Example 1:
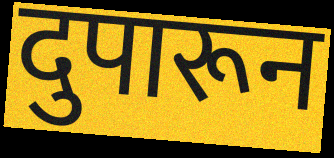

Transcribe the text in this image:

दुपारून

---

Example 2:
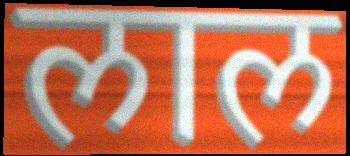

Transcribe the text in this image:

लाल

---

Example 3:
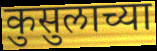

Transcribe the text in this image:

कुसुलाच्या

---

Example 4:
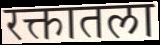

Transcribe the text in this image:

रक्तातला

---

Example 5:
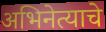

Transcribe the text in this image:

अभिनेत्याचे